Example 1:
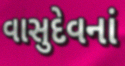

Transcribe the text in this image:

વાસુદેવનાં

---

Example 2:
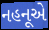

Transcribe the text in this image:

નહનૂએ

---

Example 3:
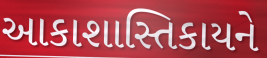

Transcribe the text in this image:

આકાશાસ્તિકાયને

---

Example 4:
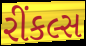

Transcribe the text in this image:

રીંકલ્સ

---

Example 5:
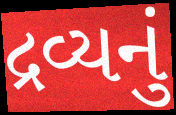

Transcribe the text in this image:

દ્રવ્યનું